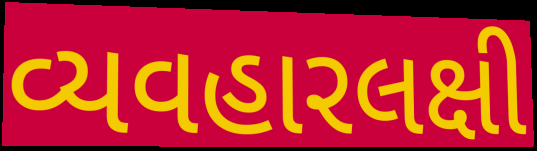
વ્યવહારલક્ષી